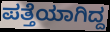
ಪತ್ತೆಯಾಗಿದ್ದ